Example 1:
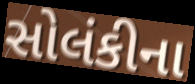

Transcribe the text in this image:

સોલંકીના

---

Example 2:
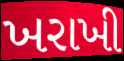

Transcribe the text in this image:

ખરાખી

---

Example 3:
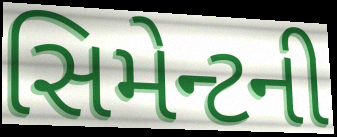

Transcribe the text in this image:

સિમેન્ટની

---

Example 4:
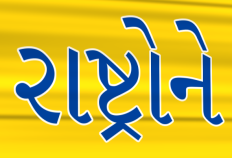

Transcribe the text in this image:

રાષ્ટ્રોને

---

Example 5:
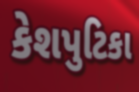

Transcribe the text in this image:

કેશપુટિકા